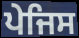
ਪੇਜਿਸ